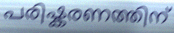
പരിഷ്കരണത്തിന്